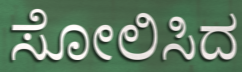
ಸೋಲಿಸಿದ